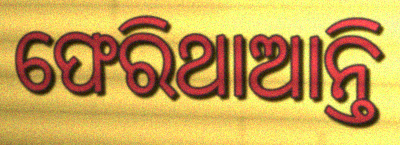
ଫେରିଥାଆନ୍ତି